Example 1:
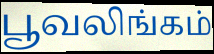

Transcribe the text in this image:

பூவலிங்கம்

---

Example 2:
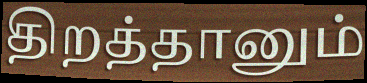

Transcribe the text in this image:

திறத்தானும்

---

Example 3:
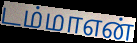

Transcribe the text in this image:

டம்மாஎன்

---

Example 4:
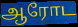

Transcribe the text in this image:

ஆரோட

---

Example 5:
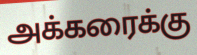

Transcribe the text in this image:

அக்கரைக்கு